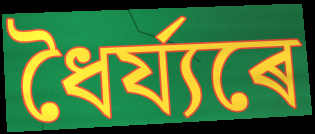
ধৈৰ্য্যৰে